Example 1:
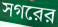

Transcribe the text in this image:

সগরের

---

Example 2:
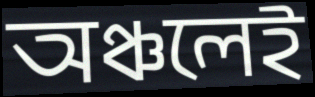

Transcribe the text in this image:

অঞ্চলেই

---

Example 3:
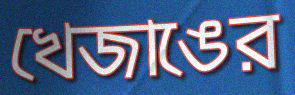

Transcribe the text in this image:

খেজাঙের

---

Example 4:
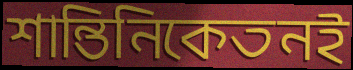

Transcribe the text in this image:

শান্তিনিকেতনই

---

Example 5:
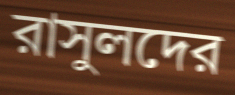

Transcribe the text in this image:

রাসুলদের